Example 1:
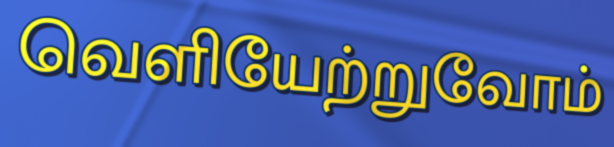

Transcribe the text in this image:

வெளியேற்றுவோம்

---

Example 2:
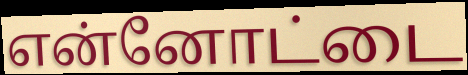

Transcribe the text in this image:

என்னோட்டை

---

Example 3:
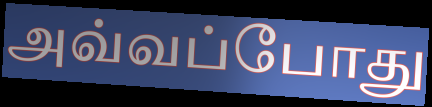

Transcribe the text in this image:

அவ்வப்போது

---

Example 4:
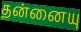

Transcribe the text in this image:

தன்னையு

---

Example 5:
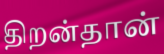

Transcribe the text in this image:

திறன்தான்